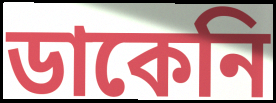
ডাকেনি